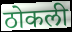
ठोकली